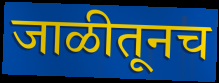
जाळीतूनच